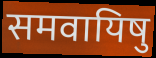
समवायिषु